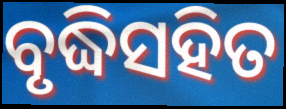
ବୃଦ୍ଧିସହିତ